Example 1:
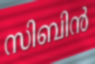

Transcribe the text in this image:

സിബിൻ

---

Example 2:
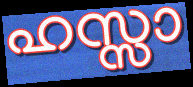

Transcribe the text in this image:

ഹസ്സാ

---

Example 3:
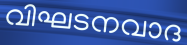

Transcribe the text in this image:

വിഘടനവാദ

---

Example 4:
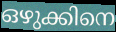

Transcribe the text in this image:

ഒഴുക്കിനെ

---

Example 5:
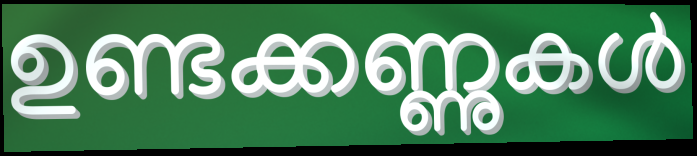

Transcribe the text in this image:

ഉണ്ടക്കണ്ണുകൾ